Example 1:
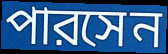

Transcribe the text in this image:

পারসেন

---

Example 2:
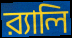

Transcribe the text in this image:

র‍্যালি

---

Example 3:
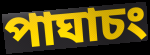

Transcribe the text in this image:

পাঘাচং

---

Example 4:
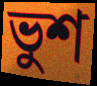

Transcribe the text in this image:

ভুশ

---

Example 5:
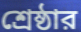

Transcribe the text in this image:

শ্রেষ্ঠার